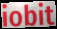
iobit